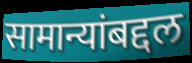
सामान्यांबद्दल